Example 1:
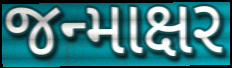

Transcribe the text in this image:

જન્માક્ષર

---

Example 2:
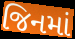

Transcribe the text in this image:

જિનમાં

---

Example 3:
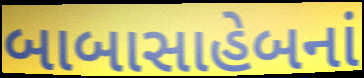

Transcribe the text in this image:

બાબાસાહેબનાં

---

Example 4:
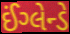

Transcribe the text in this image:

ઈંગ્લેન્ડે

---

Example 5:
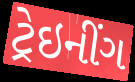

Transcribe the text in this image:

ટ્રેઇનીંગ